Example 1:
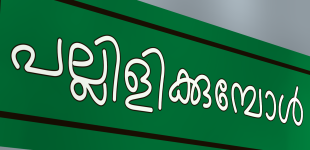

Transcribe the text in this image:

പല്ലിളിക്കുമ്പോൾ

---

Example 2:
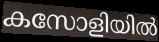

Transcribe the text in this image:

കസോളിയിൽ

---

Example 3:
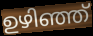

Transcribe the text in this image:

ഉഴിഞ്ഞ്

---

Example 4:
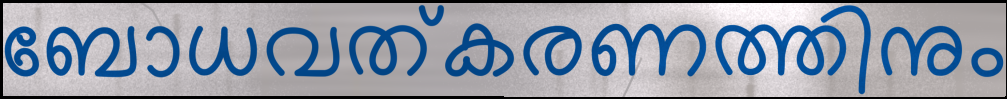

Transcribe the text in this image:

ബോധവത്കരണത്തിനും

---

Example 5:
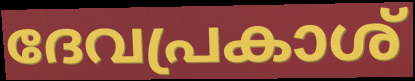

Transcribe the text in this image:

ദേവപ്രകാശ്